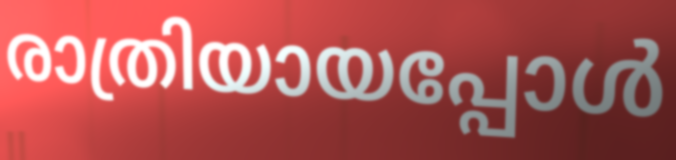
രാത്രിയായപ്പോൾ